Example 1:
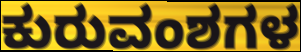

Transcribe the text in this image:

ಕುರುವಂಶಗಳ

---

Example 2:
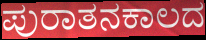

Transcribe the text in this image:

ಪುರಾತನಕಾಲದ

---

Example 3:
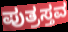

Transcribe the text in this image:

ಪುತ್ರಸ್ತವ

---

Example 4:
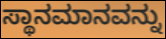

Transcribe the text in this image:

ಸ್ಥಾನಮಾನವನ್ನು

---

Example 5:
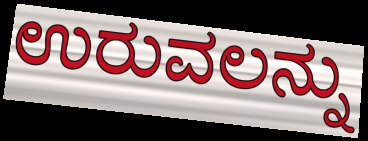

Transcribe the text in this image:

ಉರುವಲನ್ನು